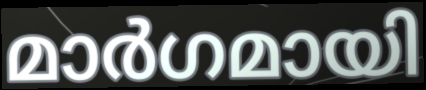
മാർഗമായി